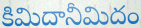
కిమిదానీమిదం